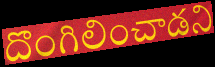
దొంగిలించాడని